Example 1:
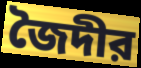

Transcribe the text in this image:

জৈদীর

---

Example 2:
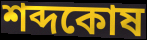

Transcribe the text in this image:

শব্দকোষ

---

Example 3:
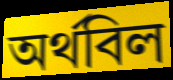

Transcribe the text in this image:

অর্থবিল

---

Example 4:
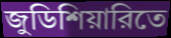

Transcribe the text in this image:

জুডিশিয়ারিতে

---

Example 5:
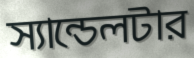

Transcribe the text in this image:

স্যান্ডেলটার